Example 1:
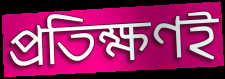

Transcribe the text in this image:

প্রতিক্ষণই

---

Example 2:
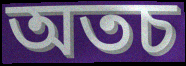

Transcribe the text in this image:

অতচ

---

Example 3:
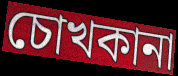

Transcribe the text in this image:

চোখকানা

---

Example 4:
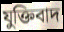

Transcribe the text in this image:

যুক্তিবাদ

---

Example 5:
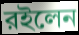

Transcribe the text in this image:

রইলেন